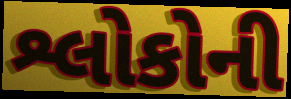
શ્લોકોની